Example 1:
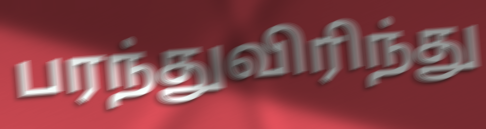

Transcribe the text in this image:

பரந்துவிரிந்து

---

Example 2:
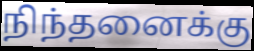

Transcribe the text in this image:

நிந்தனைக்கு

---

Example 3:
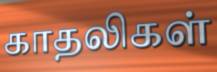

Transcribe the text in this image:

காதலிகள்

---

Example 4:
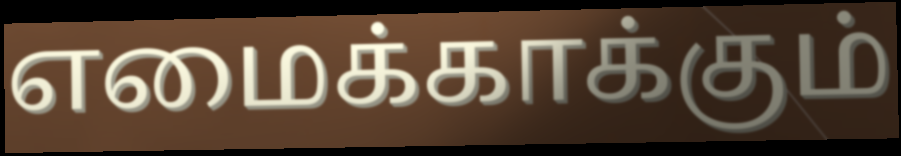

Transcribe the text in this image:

எமைக்காக்கும்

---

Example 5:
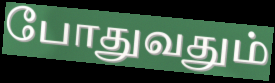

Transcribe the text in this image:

போதுவதும்